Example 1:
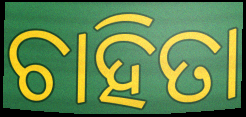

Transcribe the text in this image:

ଚାହିତା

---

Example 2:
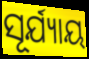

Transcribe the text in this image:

ସୂର୍ଯ୍ୟାୟ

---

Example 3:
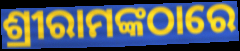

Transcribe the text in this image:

ଶ୍ରୀରାମଙ୍କଠାରେ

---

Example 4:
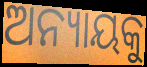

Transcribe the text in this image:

ଅନ୍ୟାୟକୁ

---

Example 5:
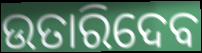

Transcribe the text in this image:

ଉତାରିଦେବ